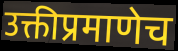
उक्तीप्रमाणेच